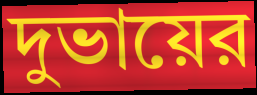
দুভায়ের